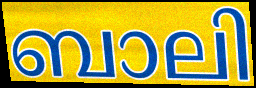
ബാലി